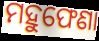
ମହୁଫେଣା